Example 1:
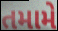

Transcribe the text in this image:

તમામે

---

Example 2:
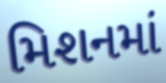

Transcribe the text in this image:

મિશનમાં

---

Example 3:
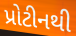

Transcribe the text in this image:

પ્રોટીનથી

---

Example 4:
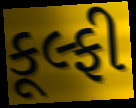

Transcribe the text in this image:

કૂલ્ફી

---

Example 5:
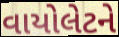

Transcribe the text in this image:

વાયોલેટને